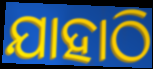
ଯାହାଠି